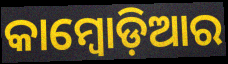
କାମ୍ବୋଡ଼ିଆର